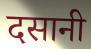
दसानी